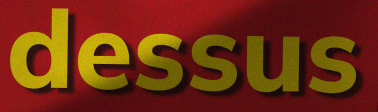
dessus